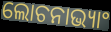
ଲୋଚନାଭ୍ୟାଂ